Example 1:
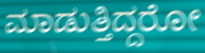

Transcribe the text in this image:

ಮಾಡುತ್ತಿದ್ದರೋ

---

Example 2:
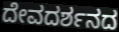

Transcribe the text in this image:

ದೇವದರ್ಶನದ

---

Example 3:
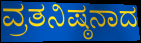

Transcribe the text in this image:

ವ್ರತನಿಷ್ಠನಾದ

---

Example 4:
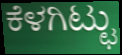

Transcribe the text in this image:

ಕೆಳಗಿಟ್ಟು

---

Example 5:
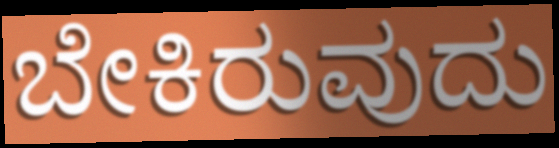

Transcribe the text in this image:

ಬೇಕಿರುವುದು